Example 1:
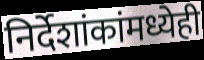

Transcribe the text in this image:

निर्देशांकांमध्येही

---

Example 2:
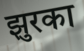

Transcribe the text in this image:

झुरका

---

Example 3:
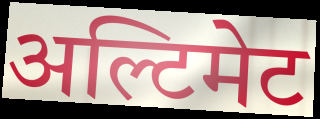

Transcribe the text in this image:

अल्टिमेट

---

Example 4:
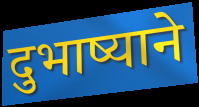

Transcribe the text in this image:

दुभाष्याने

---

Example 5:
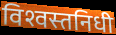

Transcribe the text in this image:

विश्वस्तनिधी